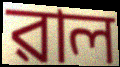
ৱাল